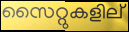
സൈറ്റുകളില്